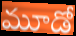
మూడో